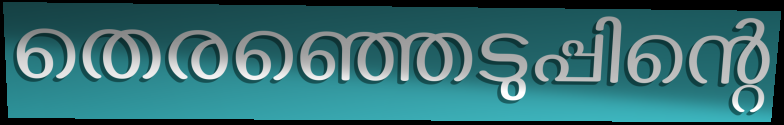
തെരഞ്ഞെടുപ്പിന്റെ